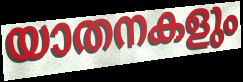
യാതനകളും